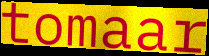
tomaar